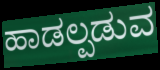
ಹಾಡಲ್ಪಡುವ